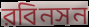
রবিনসন